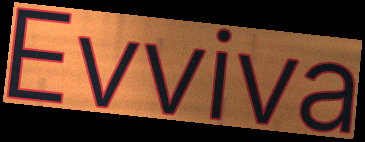
Evviva